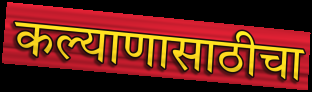
कल्याणासाठीचा